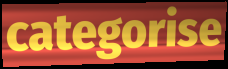
categorise